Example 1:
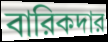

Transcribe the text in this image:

বারিকদার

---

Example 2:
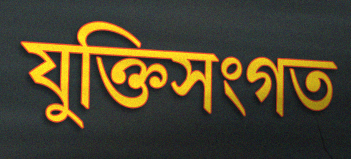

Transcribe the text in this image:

যুক্তিসংগত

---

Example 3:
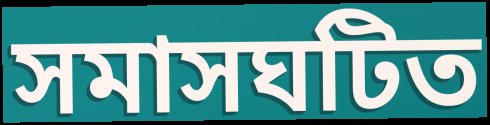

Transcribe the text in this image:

সমাসঘটিত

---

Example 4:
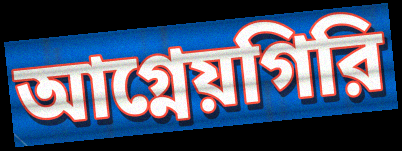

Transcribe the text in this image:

আগ্নেয়গিরি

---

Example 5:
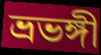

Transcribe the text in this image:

ভ্রভঙ্গী